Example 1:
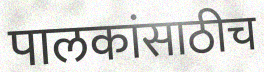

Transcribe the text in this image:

पालकांसाठीच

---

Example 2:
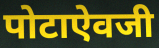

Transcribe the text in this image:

पोटाऐवजी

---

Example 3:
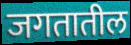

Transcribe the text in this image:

जगतातील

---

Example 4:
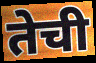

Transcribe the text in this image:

तेची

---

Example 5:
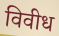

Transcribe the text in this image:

विवीध